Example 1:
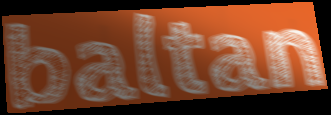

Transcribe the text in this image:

baltan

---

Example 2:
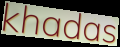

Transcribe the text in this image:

khadas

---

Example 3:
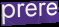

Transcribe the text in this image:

prere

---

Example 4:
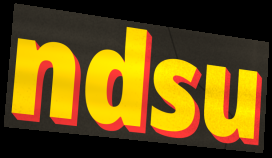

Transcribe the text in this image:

ndsu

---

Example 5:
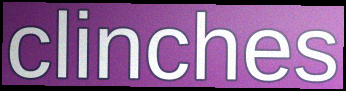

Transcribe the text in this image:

clinches